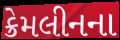
ક્રેમલીનના